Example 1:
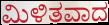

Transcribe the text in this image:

ಮಿಳಿತವಾದ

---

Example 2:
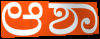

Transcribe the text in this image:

ಆಶಾ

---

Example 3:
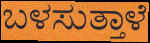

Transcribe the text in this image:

ಬಳಸುತ್ತಾಳೆ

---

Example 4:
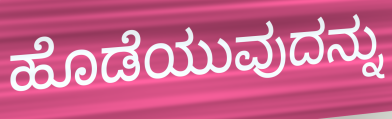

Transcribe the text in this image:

ಹೊಡೆಯುವುದನ್ನು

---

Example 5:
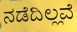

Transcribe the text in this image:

ನಡೆದಿಲ್ಲವೆ